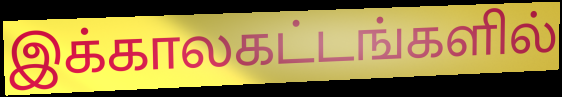
இக்காலகட்டங்களில்